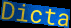
Dicta